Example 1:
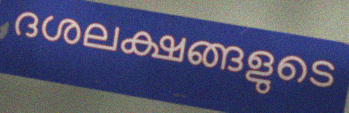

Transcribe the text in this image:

ദശലക്ഷങ്ങളുടെ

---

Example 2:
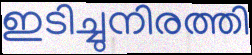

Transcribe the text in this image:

ഇടിച്ചുനിരത്തി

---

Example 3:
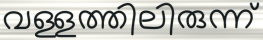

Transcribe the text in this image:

വള്ളത്തിലിരുന്ന്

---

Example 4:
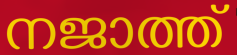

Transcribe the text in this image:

നജാത്ത്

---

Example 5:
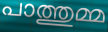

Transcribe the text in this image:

പാത്തുമ്മ